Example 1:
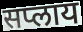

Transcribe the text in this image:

सप्लाय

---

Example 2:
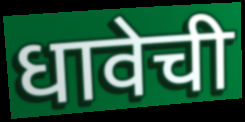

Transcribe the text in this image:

धावेची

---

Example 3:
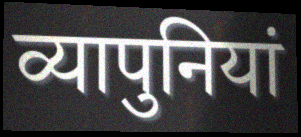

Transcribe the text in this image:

व्यापुनियां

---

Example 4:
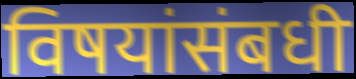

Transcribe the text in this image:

विषयांसंबधी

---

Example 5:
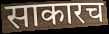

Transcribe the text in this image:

साकारच